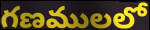
గణములలో